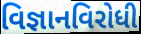
વિજ્ઞાનવિરોધી